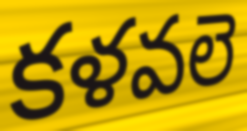
కళవలె